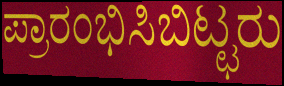
ಪ್ರಾರಂಭಿಸಿಬಿಟ್ಟರು